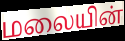
மலையின்